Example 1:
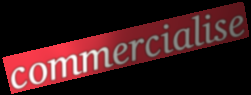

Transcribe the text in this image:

commercialise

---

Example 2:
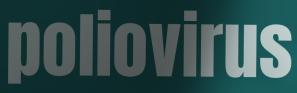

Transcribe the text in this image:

poliovirus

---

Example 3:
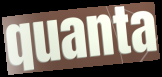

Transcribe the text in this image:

quanta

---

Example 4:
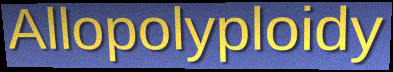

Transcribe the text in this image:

Allopolyploidy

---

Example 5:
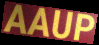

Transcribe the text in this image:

AAUP